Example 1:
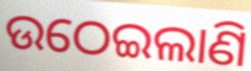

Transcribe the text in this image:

ଉଠେଇଲାଣି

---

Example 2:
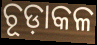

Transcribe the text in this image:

ଚୂଡ଼ାକଳ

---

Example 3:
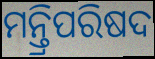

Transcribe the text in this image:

ମନ୍ତ୍ରିପରିଷଦ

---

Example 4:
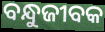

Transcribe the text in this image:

ବନ୍ଧୁଜୀବକ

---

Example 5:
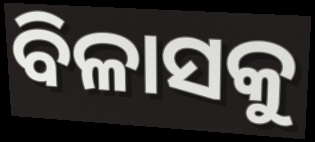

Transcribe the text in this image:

ବିଳାସକୁ